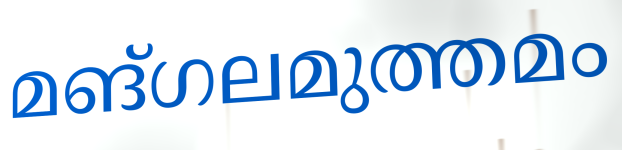
മങ്ഗലമുത്തമം